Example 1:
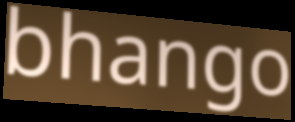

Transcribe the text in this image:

bhango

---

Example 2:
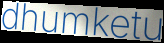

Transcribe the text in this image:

dhumketu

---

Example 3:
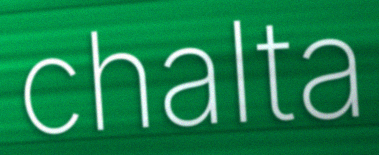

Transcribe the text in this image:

chalta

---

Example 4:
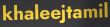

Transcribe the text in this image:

khaleejtamil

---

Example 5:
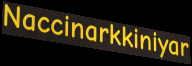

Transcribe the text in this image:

Naccinarkkiniyar